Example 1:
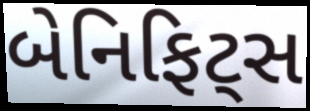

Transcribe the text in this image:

બેનિફિટ્સ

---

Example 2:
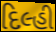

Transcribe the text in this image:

દિલ્હી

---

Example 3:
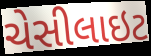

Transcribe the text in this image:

ચેસીલાઇટ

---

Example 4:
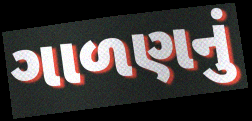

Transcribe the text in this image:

ગાળણનું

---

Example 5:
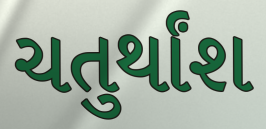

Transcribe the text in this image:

ચતુર્થાંશ